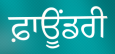
ਫ਼ਾਊਂਡਰੀ